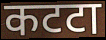
कटटा